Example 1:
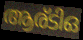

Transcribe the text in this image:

ആര്ടിഒ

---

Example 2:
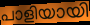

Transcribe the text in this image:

പാളിയായി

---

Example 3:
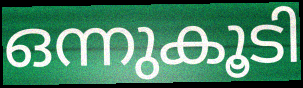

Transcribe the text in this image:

ഒന്നുകൂടി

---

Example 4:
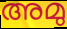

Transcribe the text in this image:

അമു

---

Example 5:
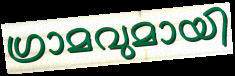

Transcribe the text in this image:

ഗ്രാമവുമായി